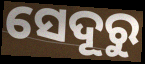
ସେଦୂରୁ